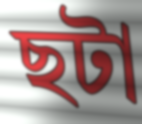
ছটা